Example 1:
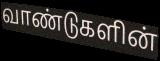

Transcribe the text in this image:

வாண்டுகளின்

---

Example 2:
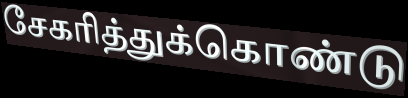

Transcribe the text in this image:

சேகரித்துக்கொண்டு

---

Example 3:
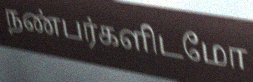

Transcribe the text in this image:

நண்பர்களிடமோ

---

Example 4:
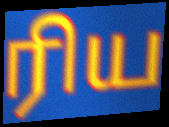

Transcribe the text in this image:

ரிய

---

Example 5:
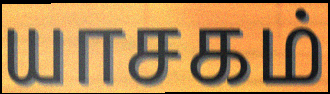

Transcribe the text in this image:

யாசகம்